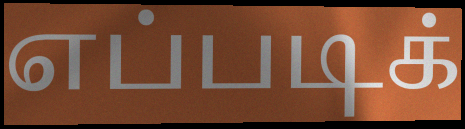
எப்படிக்